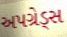
અપગ્રેડ્સ